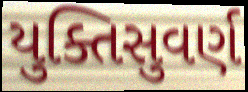
યુક્તિસુવર્ણ